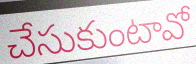
చేసుకుంటావో